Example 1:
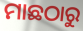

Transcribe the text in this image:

ମାଛଠାରୁ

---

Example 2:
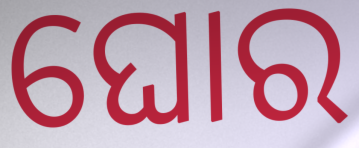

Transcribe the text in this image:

ଘୋର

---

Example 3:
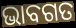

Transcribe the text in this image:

ଭାବଗତ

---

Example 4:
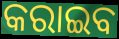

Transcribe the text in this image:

କରାଇବ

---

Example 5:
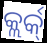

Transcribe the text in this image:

କ୍ଲର୍କ୍